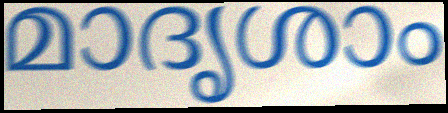
മാദൃശാം